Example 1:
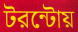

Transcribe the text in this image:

টরন্টোয়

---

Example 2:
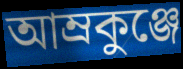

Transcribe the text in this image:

আম্রকুঞ্জে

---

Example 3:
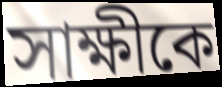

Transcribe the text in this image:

সাক্ষীকে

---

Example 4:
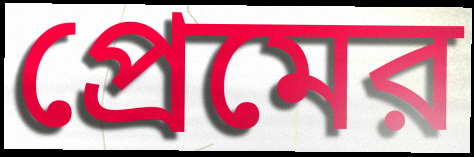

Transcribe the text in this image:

প্রেমের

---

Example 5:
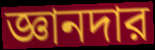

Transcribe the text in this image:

জ্ঞানদার